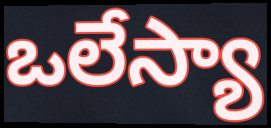
ఒలేస్యా